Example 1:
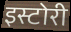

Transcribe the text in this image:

इस्टोरी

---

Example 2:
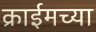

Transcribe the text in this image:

क्राईमच्या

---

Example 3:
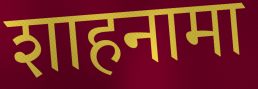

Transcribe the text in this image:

शाहनामा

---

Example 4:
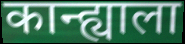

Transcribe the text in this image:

कान्ह्याला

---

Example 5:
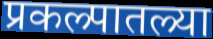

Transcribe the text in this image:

प्रकल्पातल्या